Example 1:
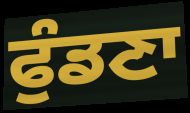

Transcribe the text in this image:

ਫੁੰਡਣਾ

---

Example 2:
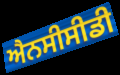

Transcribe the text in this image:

ਐਨਸੀਸੀਡੀ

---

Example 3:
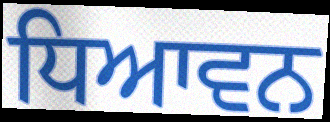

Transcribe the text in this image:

ਧਿਆਵਨ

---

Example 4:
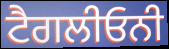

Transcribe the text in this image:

ਟੈਗਲੀਓਨੀ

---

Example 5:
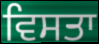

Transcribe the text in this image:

ਵਿਸਤਾ